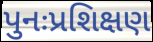
પુનઃપ્રશિક્ષણ